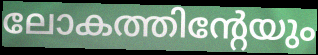
ലോകത്തിന്റേയും